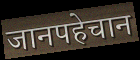
जानपहेचान